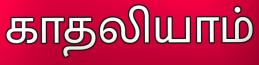
காதலியாம்